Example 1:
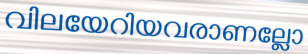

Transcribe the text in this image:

വിലയേറിയവരാണല്ലോ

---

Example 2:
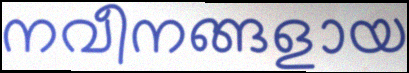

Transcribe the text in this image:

നവീനങ്ങളായ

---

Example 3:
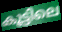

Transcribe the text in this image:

കൂട്ടിലെ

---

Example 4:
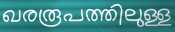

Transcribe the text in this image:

ഖരരൂപത്തിലുള്ള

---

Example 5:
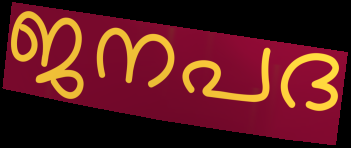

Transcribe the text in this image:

ജനപദ